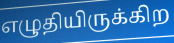
எழுதியிருக்கிற